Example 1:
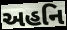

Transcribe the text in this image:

અહનિ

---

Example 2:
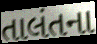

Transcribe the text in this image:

તાલંતના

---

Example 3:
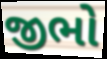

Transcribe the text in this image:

જીભો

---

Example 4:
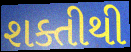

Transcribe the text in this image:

શક્તીથી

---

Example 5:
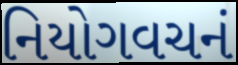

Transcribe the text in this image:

નિયોગવચનં